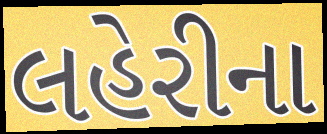
લહેરીના